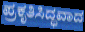
ಪ್ರಕೃತಿಸಿದ್ಧವಾದ